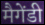
मैगेंडी